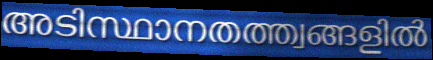
അടിസ്ഥാനതത്ത്വങ്ങളിൽ